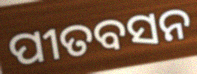
ପୀତବସନ